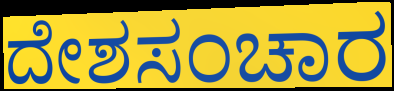
ದೇಶಸಂಚಾರ